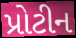
પ્રોટીન